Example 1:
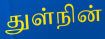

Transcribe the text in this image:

துள்நின்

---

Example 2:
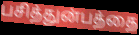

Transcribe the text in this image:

பசித்துன்பத்தை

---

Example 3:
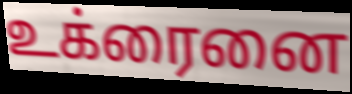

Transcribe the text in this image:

உக்ரைனை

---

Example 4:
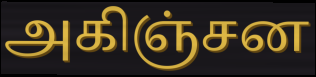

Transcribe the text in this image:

அகிஞ்சன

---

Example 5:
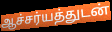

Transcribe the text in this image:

ஆச்சர்யத்துடன்